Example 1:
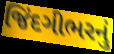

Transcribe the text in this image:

જિંદગીભરનું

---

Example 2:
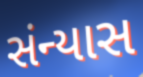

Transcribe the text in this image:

સંન્યાસ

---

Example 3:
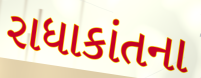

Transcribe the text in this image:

રાધાકાંતના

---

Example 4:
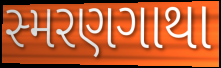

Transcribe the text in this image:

સ્મરણગાથા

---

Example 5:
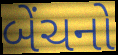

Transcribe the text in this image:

બેંચનો